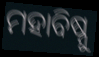
ମହାବିଷ୍ନୁ